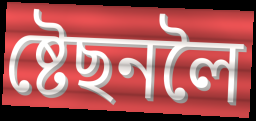
ষ্টেছনলৈ